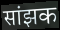
सांझक